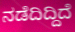
ನಡೆದಿದ್ದಿದೆ